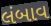
લંબાવ